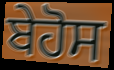
ਬੇਹੋਸ